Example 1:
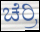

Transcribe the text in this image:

ಚೆರ‍್ರಿ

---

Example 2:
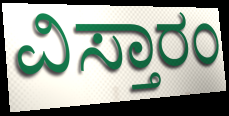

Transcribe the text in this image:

ವಿಸ್ತಾರಂ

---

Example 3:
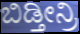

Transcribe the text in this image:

ಬಿಡ್ತೀನ್ರಿ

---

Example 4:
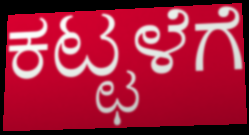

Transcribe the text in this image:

ಕಟ್ಟಳೆಗೆ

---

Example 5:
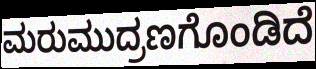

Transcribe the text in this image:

ಮರುಮುದ್ರಣಗೊಂಡಿದೆ